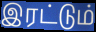
இரட்டும்